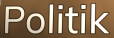
Politik